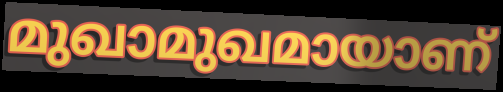
മുഖാമുഖമായാണ്